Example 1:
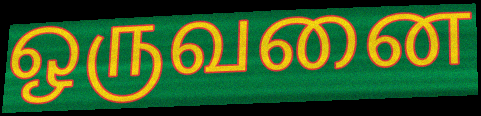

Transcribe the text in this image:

ஒருவனை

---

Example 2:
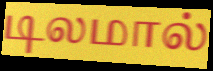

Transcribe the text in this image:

டிலமால்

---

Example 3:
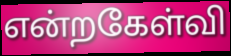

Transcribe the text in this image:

என்றகேள்வி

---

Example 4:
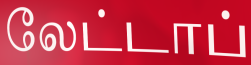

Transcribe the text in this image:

லேட்டாப்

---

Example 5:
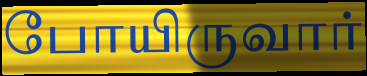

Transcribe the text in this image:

போயிருவார்